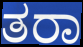
ತರಾ